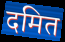
दमित